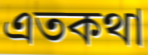
এতকথা